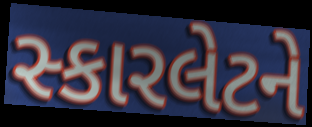
સ્કારલેટને